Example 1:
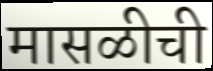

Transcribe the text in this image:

मासळीची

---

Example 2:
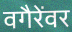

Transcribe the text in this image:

वगैरेंवर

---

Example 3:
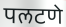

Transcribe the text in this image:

पलटणे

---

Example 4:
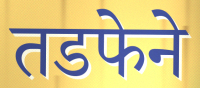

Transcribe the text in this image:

तडफेने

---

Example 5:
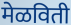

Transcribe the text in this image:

मेळविती